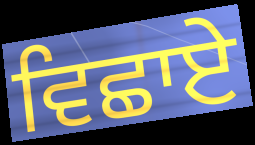
ਵਿਛਾਏ